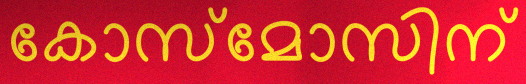
കോസ്മോസിന്